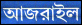
আজরাইল